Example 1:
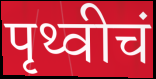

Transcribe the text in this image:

पृथ्वीचं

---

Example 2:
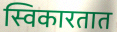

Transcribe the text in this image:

स्विकारतात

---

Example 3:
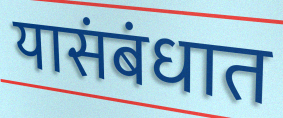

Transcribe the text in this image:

यासंबंधात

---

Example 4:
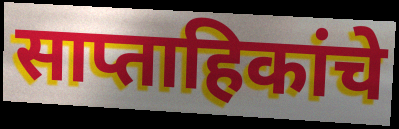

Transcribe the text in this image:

साप्ताहिकांचे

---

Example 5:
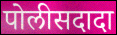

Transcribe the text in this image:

पोलीसदादा